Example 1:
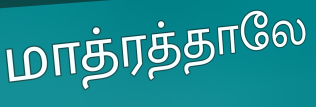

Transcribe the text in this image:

மாத்ரத்தாலே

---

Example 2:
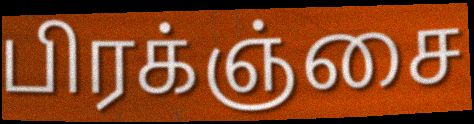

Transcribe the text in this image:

பிரக்ஞ்சை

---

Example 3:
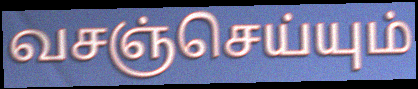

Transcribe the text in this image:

வசஞ்செய்யும்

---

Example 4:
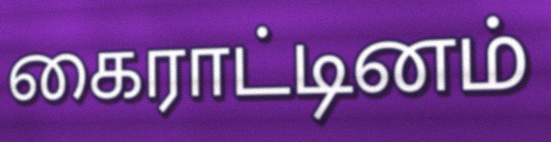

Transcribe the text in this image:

கைராட்டினம்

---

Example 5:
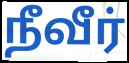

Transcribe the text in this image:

நீவீர்